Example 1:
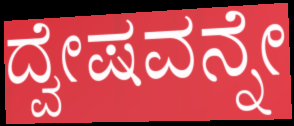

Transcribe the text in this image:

ದ್ವೇಷವನ್ನೇ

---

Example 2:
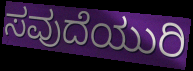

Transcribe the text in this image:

ಸವುದೆಯುರಿ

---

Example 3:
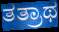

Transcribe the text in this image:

ತತ್ರಾಥ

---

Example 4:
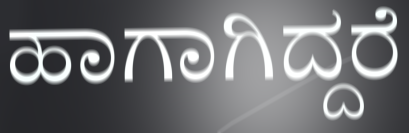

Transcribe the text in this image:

ಹಾಗಾಗಿದ್ದರೆ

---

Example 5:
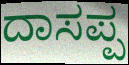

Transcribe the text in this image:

ದಾಸಪ್ಪ